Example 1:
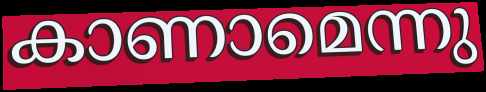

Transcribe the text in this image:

കാണാമെന്നു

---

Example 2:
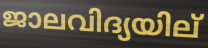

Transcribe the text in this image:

ജാലവിദ്യയില്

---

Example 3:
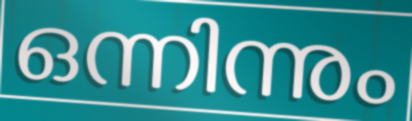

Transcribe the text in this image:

ഒന്നിന്നും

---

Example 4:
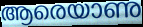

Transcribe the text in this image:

ആരെയാണു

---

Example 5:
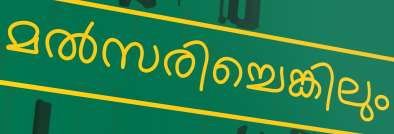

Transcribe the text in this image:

മൽസരിച്ചെങ്കിലും